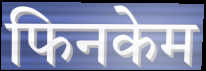
फिनकेम